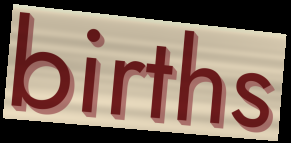
births